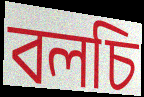
বলচি